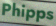
Phipps